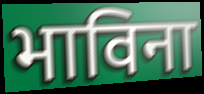
भाविना